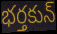
భర్తకున్